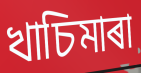
খাচিমাৰা